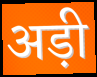
अड़ी